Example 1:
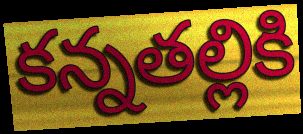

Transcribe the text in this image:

కన్నతల్లికి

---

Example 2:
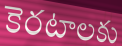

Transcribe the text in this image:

కెరటాలకు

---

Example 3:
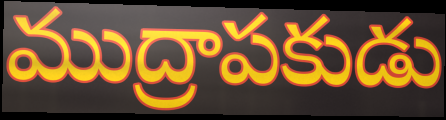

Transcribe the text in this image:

ముద్రాపకుడు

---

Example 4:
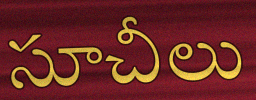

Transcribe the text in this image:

సూచీలు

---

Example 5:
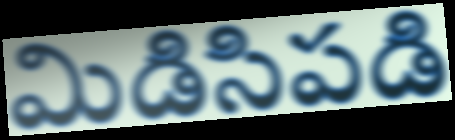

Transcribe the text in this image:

మిడిసిపడి